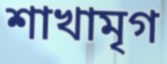
শাখামৃগ